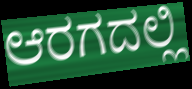
ಆರಗದಲ್ಲಿ